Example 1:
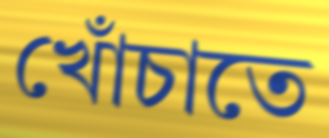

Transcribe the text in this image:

খোঁচাতে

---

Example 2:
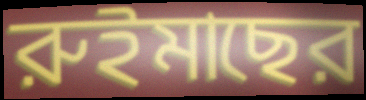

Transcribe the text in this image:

রুইমাছের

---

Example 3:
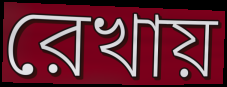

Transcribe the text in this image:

রেখায়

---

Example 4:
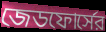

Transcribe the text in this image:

জেডফোর্সের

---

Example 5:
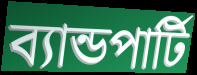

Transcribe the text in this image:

ব্যান্ডপার্টি